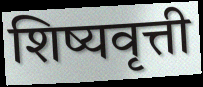
शिष्यवृत्ती